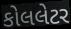
કોલલેટર